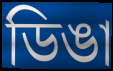
ডিঙা